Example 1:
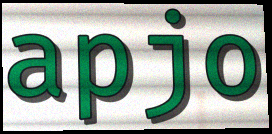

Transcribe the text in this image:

apjo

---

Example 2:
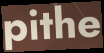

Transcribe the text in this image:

pithe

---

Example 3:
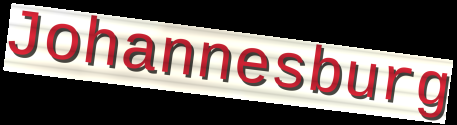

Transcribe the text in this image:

Johannesburg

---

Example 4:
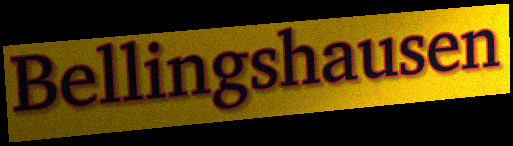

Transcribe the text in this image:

Bellingshausen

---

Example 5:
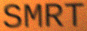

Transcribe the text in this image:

SMRT